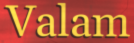
Valam